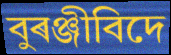
বুৰঞ্জীবিদে